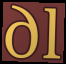
dl